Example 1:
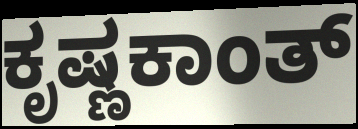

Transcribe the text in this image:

ಕೃಷ್ಣಕಾಂತ್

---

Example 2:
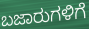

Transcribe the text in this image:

ಬಜಾರುಗಳಿಗೆ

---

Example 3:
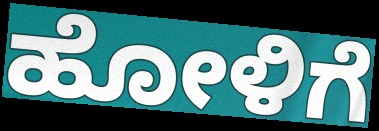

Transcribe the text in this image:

ಹೋಳಿಗೆ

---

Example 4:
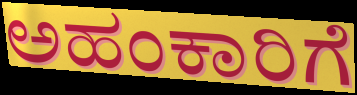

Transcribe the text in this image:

ಅಹಂಕಾರಿಗೆ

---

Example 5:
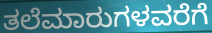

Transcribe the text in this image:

ತಲೆಮಾರುಗಳವರೆಗೆ